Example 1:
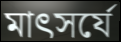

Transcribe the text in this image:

মাৎসর্যে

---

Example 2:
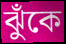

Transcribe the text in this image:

ঝুঁকে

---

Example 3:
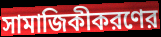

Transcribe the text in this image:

সামাজিকীকরণের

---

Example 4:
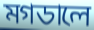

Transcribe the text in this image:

মগডালে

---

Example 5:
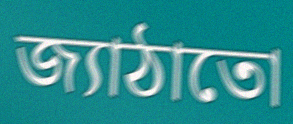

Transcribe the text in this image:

জ্যাঠাতো